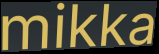
mikka